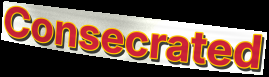
Consecrated